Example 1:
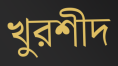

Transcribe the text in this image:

খুরশীদ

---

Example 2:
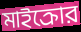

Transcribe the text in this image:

মাইক্রোর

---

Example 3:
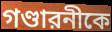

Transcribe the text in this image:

গণ্ডারনীকে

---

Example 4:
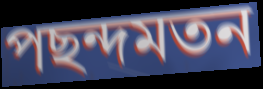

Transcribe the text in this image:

পছন্দমতন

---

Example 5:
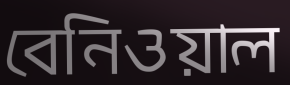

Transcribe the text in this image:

বেনিওয়াল